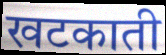
खटकाती